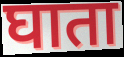
घाता